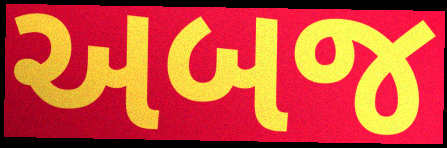
અબજ